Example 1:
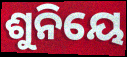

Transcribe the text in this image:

ଶୁନିୟେ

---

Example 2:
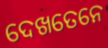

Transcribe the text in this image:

ଦେଖତେନେ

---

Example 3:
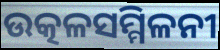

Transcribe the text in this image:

ଉତ୍କଳସମ୍ମିଳନୀ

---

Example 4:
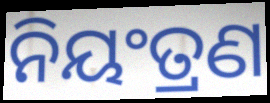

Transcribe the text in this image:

ନିୟଂତ୍ରଣ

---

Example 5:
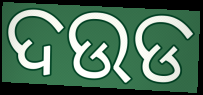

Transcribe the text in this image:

ଦଉଡ